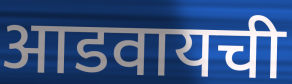
आडवायची